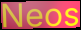
Neos